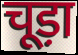
चूड़ा